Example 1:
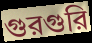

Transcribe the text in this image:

গুরগুরি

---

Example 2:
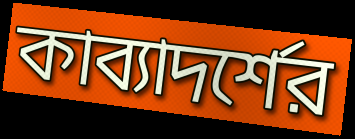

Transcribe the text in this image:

কাব্যাদর্শের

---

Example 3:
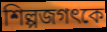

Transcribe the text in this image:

শিল্পজগৎকে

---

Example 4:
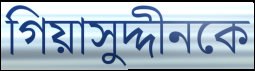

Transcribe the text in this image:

গিয়াসুদ্দীনকে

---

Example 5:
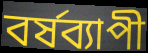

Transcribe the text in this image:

বর্ষব্যাপী